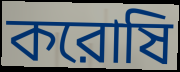
করোষি